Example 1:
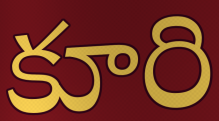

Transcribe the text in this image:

కూరి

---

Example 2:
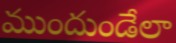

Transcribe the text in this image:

ముందుండేలా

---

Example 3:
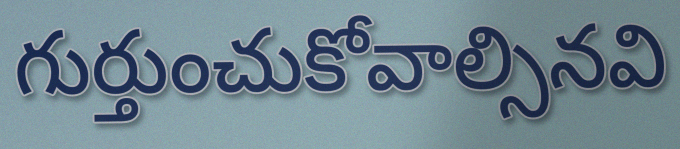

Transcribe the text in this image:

గుర్తుంచుకోవాల్సినవి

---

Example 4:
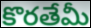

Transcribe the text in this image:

కొరతేమీ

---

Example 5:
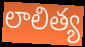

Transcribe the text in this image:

లాలిత్య